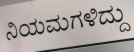
ನಿಯಮಗಳಿದ್ದು